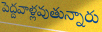
పెద్దవాళ్లవుతున్నారు